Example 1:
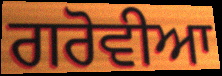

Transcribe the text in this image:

ਗਰੋਵੀਆ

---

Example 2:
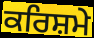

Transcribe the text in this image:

ਕਰਿਸ਼ਮੇ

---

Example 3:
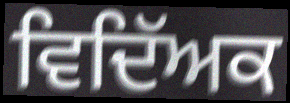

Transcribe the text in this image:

ਵਿਦਿੱਅਕ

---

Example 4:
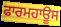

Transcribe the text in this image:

ਫਾਰਮਹਾਊਸ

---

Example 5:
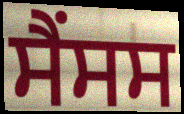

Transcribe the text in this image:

ਸੈਂਸਸ